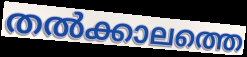
തൽക്കാലത്തെ